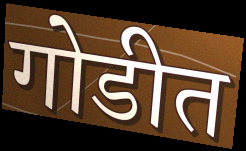
गोडीत